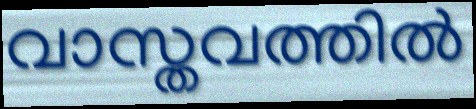
വാസ്തവത്തിൽ